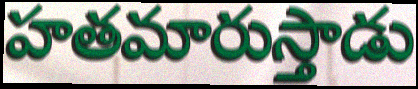
హతమారుస్తాడు